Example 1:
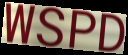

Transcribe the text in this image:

WSPD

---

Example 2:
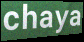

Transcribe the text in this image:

chaya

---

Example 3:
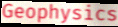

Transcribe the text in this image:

Geophysics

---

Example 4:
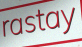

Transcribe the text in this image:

rastay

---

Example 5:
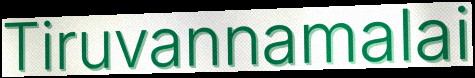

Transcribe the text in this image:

Tiruvannamalai